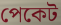
পেকেট